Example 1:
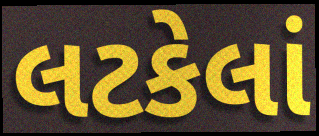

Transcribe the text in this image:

લટકેલાં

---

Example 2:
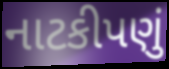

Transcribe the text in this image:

નાટકીપણું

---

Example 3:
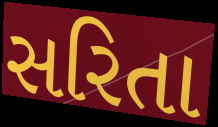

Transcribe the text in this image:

સરિતા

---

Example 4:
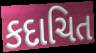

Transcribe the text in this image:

કદાચિત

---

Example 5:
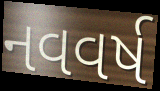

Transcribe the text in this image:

નવવર્ષ